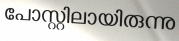
പോസ്റ്റിലായിരുന്നു